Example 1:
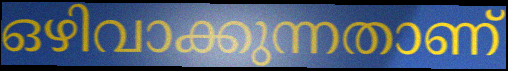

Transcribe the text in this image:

ഒഴിവാക്കുന്നതാണ്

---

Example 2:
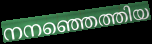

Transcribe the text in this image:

നനഞ്ഞെത്തിയ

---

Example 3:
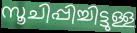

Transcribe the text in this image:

സൂചിപ്പിച്ചിട്ടുള്ള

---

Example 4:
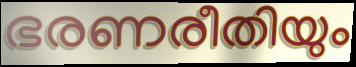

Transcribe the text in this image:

ഭരണരീതിയും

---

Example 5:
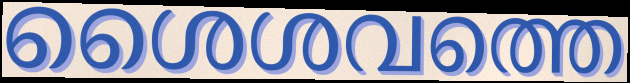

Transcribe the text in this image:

ശൈശവത്തെ